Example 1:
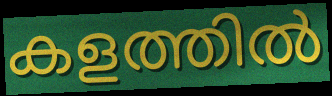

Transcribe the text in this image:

കളത്തിൽ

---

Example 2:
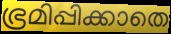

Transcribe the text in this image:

ഭ്രമിപ്പിക്കാതെ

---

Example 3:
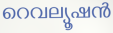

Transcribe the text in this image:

റെവല്യൂഷൻ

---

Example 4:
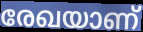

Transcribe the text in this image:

രേഖയാണ്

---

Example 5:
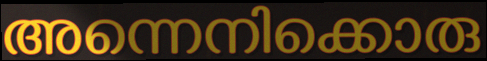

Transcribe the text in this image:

അന്നെനിക്കൊരു